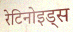
रेटिनोइड्स